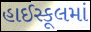
હાઈસ્કૂલમાં